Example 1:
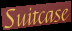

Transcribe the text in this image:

Suitcase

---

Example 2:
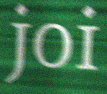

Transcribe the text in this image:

joi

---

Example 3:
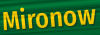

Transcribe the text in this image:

Mironow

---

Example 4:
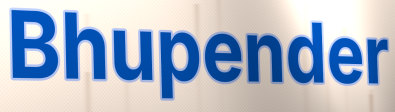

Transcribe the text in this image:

Bhupender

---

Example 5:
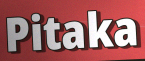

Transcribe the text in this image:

Pitaka